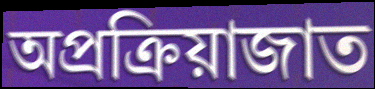
অপ্রক্রিয়াজাত